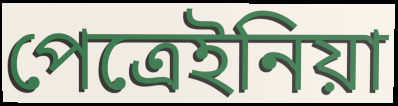
পেত্রেইনিয়া